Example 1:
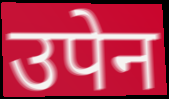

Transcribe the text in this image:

उपेन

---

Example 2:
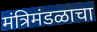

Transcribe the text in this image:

मंत्रिमंडळाचा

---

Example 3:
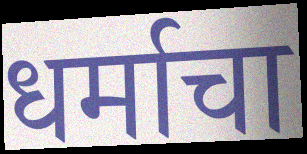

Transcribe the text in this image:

धर्माचा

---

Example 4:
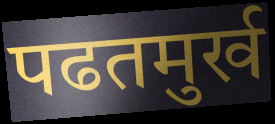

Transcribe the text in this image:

पढतमुर्ख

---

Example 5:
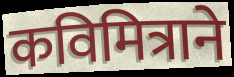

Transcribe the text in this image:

कविमित्राने